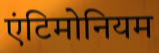
एंटिमोनियम